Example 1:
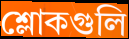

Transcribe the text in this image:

শ্লোকগুলি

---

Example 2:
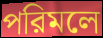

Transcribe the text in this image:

পরিমলে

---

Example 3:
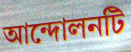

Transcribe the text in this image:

আন্দোলনটি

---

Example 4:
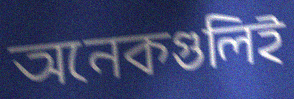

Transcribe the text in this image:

অনেকগুলিই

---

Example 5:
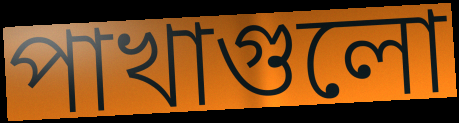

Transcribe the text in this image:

পাখাগুলো